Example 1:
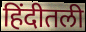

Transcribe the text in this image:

हिंदीतली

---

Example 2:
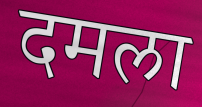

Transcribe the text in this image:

दमला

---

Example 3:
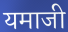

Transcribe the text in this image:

यमाजी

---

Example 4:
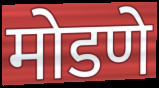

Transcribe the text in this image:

मोडणे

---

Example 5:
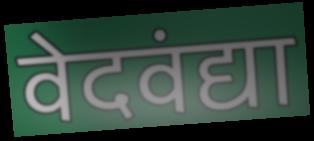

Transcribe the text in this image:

वेदवंद्या